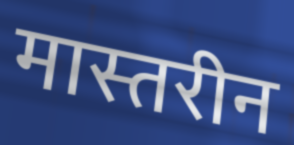
मास्तरीन